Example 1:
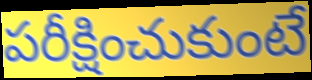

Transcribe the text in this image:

పరీక్షించుకుంటే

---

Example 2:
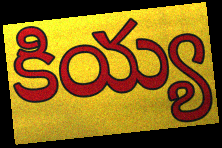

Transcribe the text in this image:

కియ్య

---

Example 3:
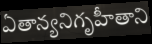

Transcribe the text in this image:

ఏతాన్యనిగృహీతాని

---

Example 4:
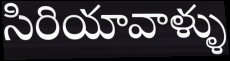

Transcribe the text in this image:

సిరియావాళ్ళు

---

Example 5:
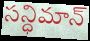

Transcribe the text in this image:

సన్ధిమాన్